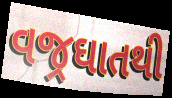
વજ્રઘાતથી